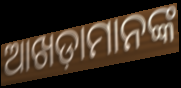
ଆଖଡ଼ାମାନଙ୍କ